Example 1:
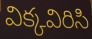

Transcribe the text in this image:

విక్కవిరిసి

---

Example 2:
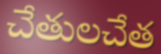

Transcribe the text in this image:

చేతులచేత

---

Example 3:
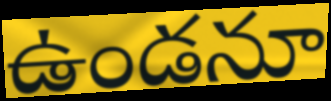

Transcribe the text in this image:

ఉండనూ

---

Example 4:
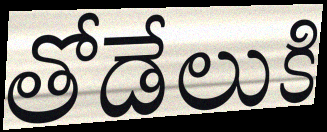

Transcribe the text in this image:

తోడేలుకి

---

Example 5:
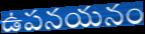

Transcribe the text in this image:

ఉపనయనం